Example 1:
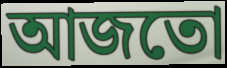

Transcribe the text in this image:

আজতো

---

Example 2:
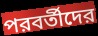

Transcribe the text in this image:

পরবর্তীদের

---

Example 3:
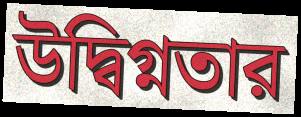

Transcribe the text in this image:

উদ্বিগ্নতার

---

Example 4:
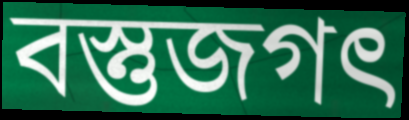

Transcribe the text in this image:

বস্তুজগৎ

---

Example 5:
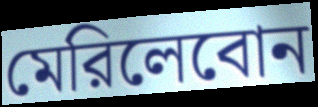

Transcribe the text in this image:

মেরিলেবোন